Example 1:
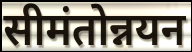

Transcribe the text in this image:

सीमंतोन्नयन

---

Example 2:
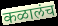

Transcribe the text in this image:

कळालंच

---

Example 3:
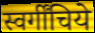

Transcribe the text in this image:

स्वर्गींचिये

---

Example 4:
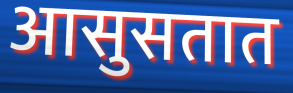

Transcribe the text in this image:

आसुसतात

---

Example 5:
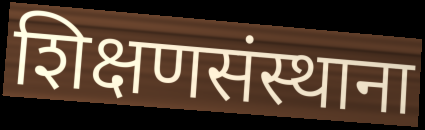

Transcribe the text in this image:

शिक्षणसंस्थाना